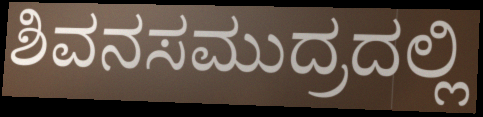
ಶಿವನಸಮುದ್ರದಲ್ಲಿ